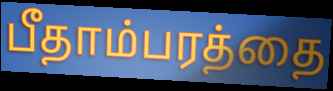
பீதாம்பரத்தை